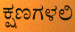
ಕ್ಷಣಗಳಲಿ